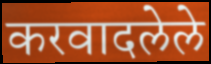
करवादलेले